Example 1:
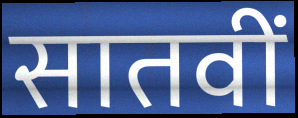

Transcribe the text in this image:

सातवीं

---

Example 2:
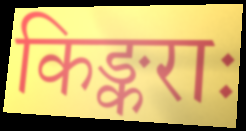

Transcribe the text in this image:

किङ्कराः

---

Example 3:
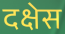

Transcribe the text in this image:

दक्षेस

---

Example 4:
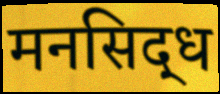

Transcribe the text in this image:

मनसिद्ध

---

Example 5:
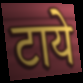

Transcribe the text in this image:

टाये